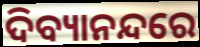
ଦିବ୍ୟାନନ୍ଦରେ